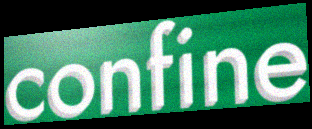
confine